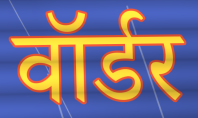
वॉर्डर